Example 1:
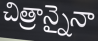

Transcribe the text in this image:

చిత్రాన్నైనా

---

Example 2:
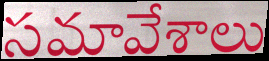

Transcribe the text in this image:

సమావేశాలు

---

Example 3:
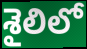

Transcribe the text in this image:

శైలిలో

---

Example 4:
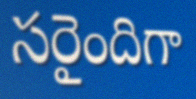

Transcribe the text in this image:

సరైందిగా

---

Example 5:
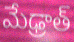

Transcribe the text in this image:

మేఢ్రాత్